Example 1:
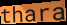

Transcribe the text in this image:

thara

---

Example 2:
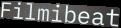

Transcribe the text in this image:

Filmibeat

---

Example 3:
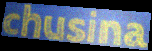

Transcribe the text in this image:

chusina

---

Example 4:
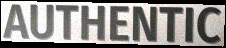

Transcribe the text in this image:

AUTHENTIC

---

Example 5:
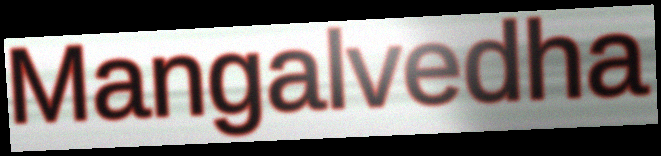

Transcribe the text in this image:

Mangalvedha